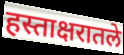
हस्ताक्षरातले